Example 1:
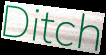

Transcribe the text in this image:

Ditch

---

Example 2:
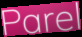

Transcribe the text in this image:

Parel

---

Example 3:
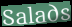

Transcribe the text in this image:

Salads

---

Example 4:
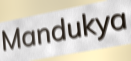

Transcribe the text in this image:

Mandukya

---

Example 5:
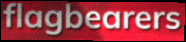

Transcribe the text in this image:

flagbearers